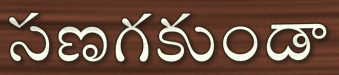
సణగకుండా